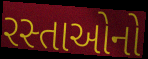
રસ્તાઓનો